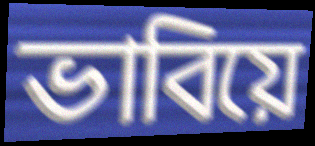
ভাবিয়ে